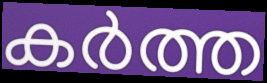
കർത്ത